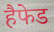
हैफेड